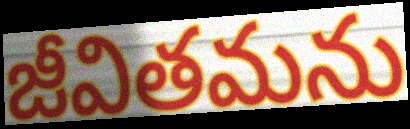
జీవితమను